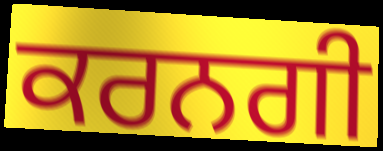
ਕਰਨਗੀ